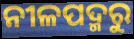
ନୀଳପଦ୍ମରୁ